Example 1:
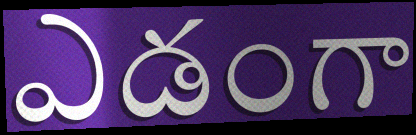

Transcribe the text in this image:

ఎడంగా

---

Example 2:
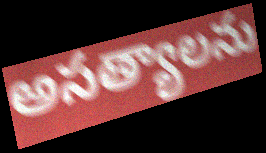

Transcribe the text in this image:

అసత్యాలను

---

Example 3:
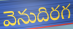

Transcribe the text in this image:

వెనుదిరగ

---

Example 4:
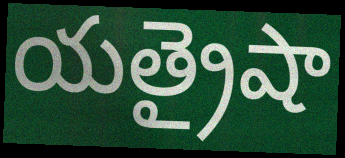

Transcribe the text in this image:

యత్రైషా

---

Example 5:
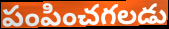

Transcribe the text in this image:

పంపించగలడు